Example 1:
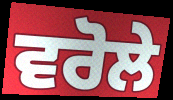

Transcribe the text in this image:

ਵਰੋਲੇ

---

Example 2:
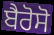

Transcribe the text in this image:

ਬੈਰੋਸੋ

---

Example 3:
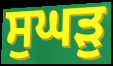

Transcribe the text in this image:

ਸੁਘੜੁ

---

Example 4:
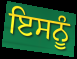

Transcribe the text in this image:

ਇਸਨੂੰ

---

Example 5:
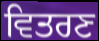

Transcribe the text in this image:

ਵਿਤਰਣ